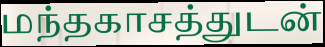
மந்தகாசத்துடன்